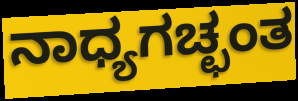
ನಾಧ್ಯಗಚ್ಛಂತ